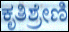
ಕೃತಿಶ್ರೇಣಿ